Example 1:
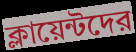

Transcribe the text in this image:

ক্লায়েন্টদের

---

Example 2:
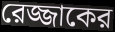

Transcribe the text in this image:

রেজ্জাকের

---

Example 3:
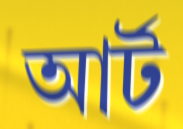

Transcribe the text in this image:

আর্ট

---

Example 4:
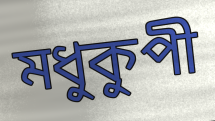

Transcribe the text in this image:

মধুকুপী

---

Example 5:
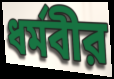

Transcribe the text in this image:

ধর্মবীর